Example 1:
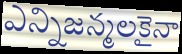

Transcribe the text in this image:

ఎన్నిజన్మలకైనా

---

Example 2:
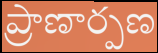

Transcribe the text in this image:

ప్రాణార్పణ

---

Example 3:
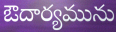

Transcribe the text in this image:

ఔదార్యమును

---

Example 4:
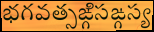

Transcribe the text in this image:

భగవత్సఙ్గిసఙ్గస్య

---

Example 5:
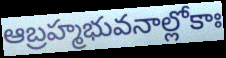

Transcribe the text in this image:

ఆబ్రహ్మభువనాల్లోకాః